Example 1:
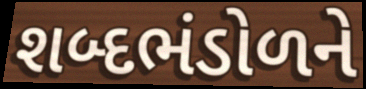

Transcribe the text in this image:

શબ્દભંડોળને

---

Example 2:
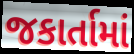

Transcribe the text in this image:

જકાર્તામાં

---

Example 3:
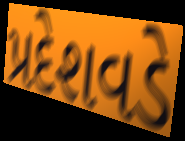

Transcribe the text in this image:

પ્રદેશવડે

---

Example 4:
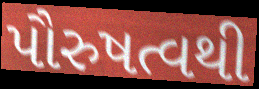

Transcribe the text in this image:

પૌરુષત્વથી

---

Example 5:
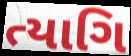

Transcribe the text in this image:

ત્યાગિ